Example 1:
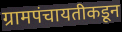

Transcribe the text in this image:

ग्रामपंचायतीकडून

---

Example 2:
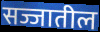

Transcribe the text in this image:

सज्जातील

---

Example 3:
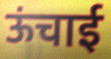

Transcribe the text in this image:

ऊंचाई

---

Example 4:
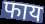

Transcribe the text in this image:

फाय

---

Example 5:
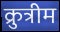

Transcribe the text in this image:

क्रुत्रीम